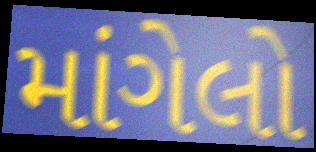
માંગેલો